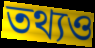
তথ্যও